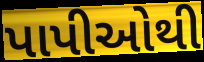
પાપીઓથી